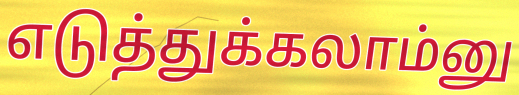
எடுத்துக்கலாம்னு